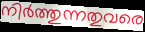
നിർത്തുന്നതുവരെ